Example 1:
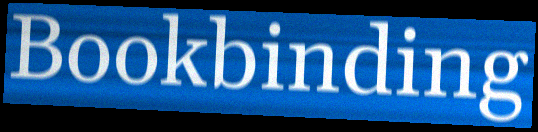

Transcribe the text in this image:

Bookbinding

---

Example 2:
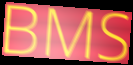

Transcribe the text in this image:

BMS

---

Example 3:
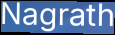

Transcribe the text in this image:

Nagrath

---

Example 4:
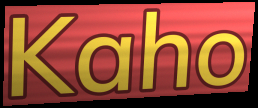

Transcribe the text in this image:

Kaho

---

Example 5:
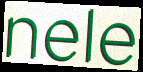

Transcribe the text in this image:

nele